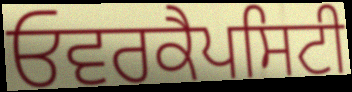
ਓਵਰਕੈਪਸਿਟੀ